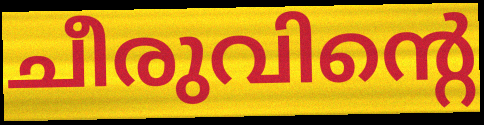
ചീരുവിന്റെ